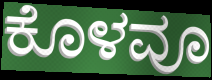
ಕೊಳವೂ